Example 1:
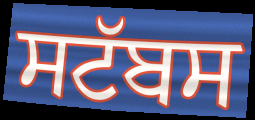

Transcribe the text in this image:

ਸਟੱਬਸ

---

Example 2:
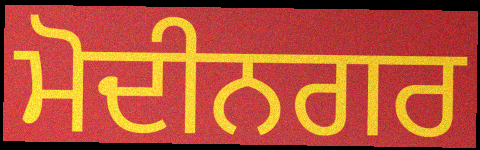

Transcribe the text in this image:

ਮੋਦੀਨਗਰ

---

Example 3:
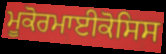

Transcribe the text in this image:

ਮੂਕੋਰਮਾਈਕੋਸਿਸ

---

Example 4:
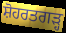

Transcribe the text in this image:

ਸ਼ੋਹਰਤਗੜ੍ਹ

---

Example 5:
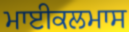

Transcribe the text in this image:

ਮਾਈਕਲਮਾਸ